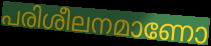
പരിശീലനമാണോ